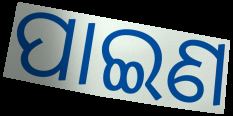
ପାଇଣ